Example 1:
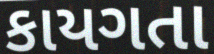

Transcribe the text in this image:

કાયગતા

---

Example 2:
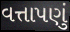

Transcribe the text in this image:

વત્તાપણું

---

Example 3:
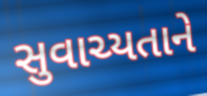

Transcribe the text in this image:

સુવાચ્યતાને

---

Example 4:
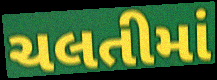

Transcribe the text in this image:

ચલતીમાં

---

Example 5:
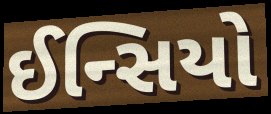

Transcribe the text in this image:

ઈન્સિયો